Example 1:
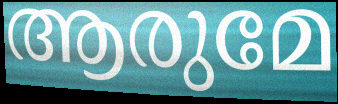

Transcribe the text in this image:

ആരുമേ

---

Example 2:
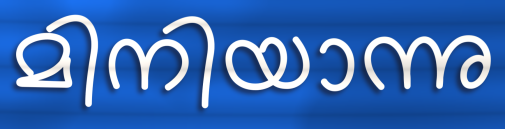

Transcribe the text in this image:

മിനിയാന്നു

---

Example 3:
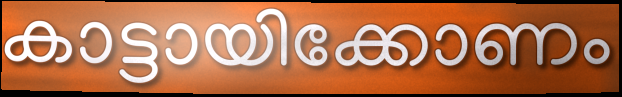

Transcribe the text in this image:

കാട്ടായിക്കോണം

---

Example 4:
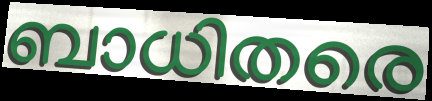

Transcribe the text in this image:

ബാധിതരെ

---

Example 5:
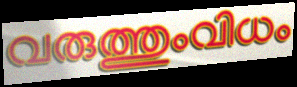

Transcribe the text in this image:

വരുത്തുംവിധം